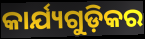
କାର୍ଯ୍ୟଗୁଡ଼ିକର